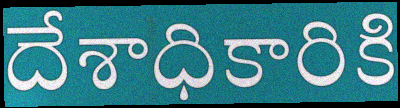
దేశాధికారికి